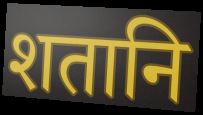
शतानि